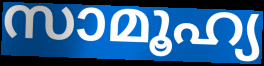
സാമൂഹ്യ